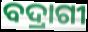
ବଦ୍ରାଗୀ